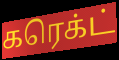
கரெக்ட்